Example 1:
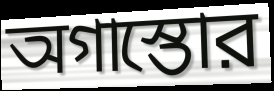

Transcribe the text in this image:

অগাস্তোর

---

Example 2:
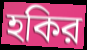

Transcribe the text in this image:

হকির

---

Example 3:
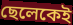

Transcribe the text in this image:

ছেলেকেই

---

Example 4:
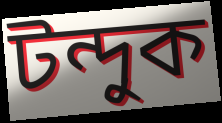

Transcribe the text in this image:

টন্দুক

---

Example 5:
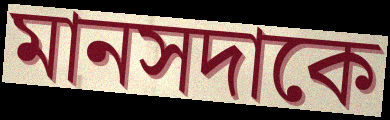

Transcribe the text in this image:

মানসদাকে